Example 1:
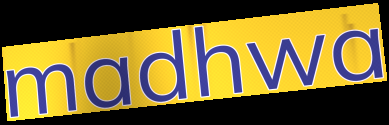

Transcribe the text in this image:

madhwa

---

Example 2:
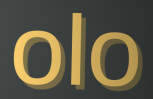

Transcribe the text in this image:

olo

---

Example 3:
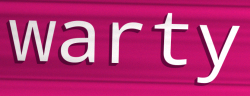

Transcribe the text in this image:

warty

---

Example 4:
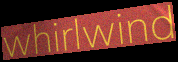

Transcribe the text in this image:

whirlwind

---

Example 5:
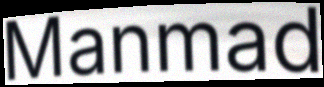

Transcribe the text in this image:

Manmad